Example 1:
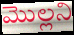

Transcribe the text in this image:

మొల్లని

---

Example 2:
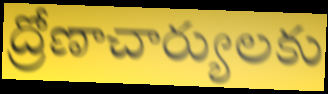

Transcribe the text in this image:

ద్రోణాచార్యులకు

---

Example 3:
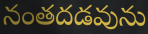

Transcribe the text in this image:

నంతదడవును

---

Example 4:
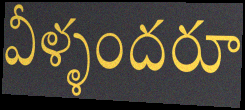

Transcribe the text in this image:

వీళ్ళందరూ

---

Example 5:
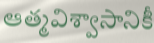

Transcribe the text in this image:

ఆత్మవిశ్వాసానికీ